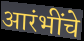
आरंभींचे